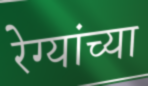
रेग्यांच्या